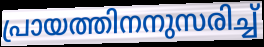
പ്രായത്തിനനുസരിച്ച്